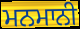
ਮਨਮਾਨੀ